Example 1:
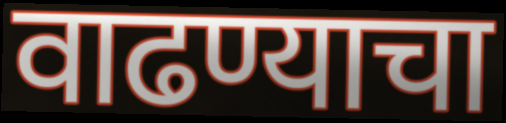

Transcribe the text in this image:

वाढण्याचा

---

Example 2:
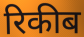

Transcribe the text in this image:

रिकीब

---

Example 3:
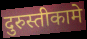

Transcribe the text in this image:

दुरुस्तीकामे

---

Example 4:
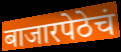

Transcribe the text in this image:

बाजारपेठेचं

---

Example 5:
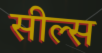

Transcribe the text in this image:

सील्स